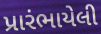
પ્રારંભાયેલી